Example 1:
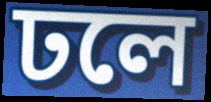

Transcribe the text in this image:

ঢলে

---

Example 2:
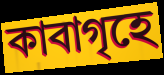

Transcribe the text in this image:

কাবাগৃহে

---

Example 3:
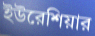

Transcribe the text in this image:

ইউরেশিয়ার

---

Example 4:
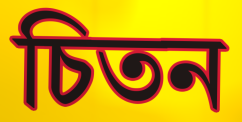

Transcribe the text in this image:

চিতন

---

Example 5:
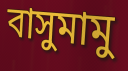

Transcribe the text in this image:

বাসুমামু